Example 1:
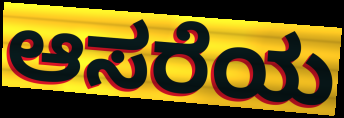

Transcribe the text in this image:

ಆಸರೆಯ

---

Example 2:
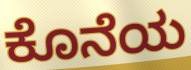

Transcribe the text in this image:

ಕೊನೆಯ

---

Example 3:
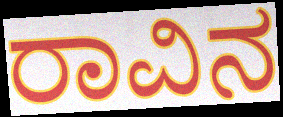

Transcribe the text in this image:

ರಾವಿನ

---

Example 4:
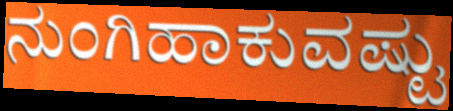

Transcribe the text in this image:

ನುಂಗಿಹಾಕುವಷ್ಟು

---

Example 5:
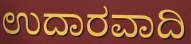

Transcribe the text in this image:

ಉದಾರವಾದಿ